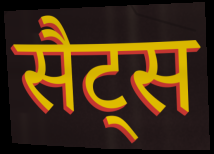
सैट्स